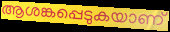
ആശങ്കപ്പെടുകയാണ്